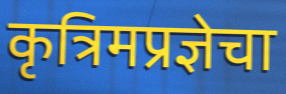
कृत्रिमप्रज्ञेचा